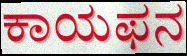
ಕಾಯಫನ